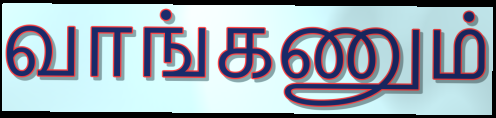
வாங்கணும்